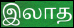
இலாத